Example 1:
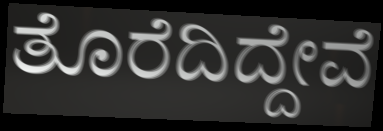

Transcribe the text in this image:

ತೊರೆದಿದ್ದೇವೆ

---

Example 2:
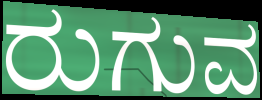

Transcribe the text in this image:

ರುಗುವ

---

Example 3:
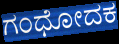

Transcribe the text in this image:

ಗಂಧೋದಕ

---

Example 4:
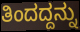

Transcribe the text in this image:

ತಿಂದದ್ದನ್ನು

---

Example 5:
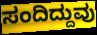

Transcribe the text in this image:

ಸಂದಿದ್ದುವು